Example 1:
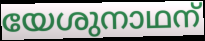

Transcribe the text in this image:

യേശുനാഥന്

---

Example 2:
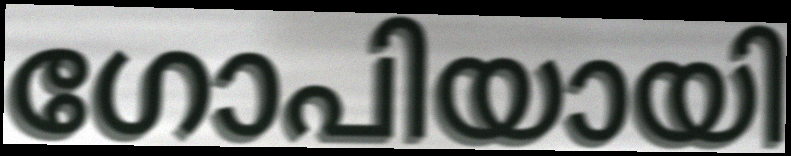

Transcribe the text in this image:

ഗോപിയായി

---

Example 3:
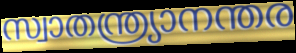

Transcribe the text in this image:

സ്വാതന്ത്ര്യാനന്തര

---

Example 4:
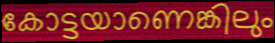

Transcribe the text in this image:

കോട്ടയാണെങ്കിലും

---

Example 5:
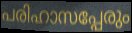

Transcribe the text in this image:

പരിഹാസപ്പേരും